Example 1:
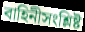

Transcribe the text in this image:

বাহিনীসংশ্লিষ্ট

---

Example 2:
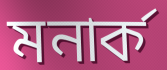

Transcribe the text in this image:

মনার্ক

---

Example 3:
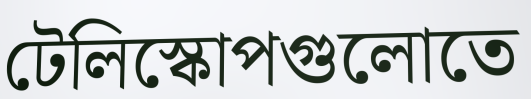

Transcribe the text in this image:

টেলিস্কোপগুলোতে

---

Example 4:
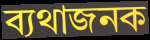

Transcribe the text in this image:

ব্যথাজনক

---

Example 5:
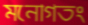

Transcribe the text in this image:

মনোগতং